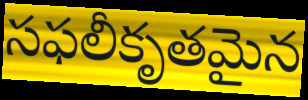
సఫలీకృతమైన